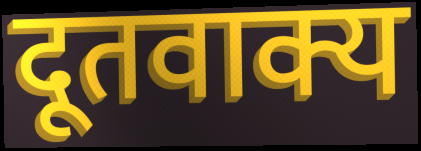
दूतवाक्य